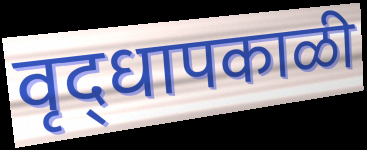
वृद्धापकाळी